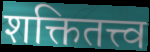
शक्तितत्त्व